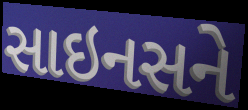
સાઇનસને